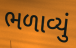
ભળાવ્યું